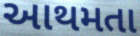
આથમતા